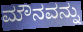
ಮೌನವನ್ನು